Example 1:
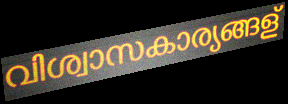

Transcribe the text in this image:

വിശ്വാസകാര്യങ്ങള്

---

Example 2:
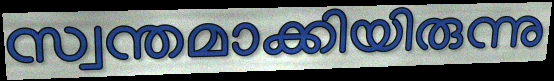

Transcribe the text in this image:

സ്വന്തമാക്കിയിരുന്നു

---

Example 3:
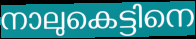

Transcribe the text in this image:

നാലുകെട്ടിനെ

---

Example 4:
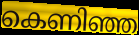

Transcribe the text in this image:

കെണിഞ്ഞ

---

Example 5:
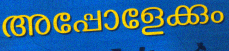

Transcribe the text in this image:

അപ്പോളേക്കും